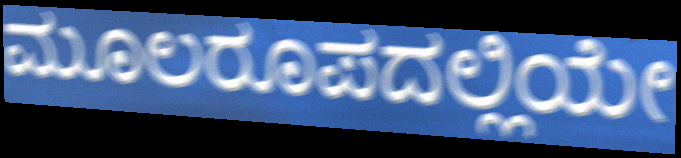
ಮೂಲರೂಪದಲ್ಲಿಯೇ